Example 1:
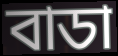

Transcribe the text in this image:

বাডা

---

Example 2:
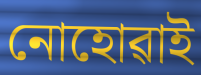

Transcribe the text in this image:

নোহোৱাই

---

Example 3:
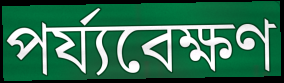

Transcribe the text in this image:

পৰ্য্যবেক্ষণ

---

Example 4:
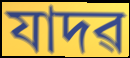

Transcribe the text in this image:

যাদৱ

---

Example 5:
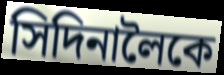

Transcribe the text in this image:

সিদিনালৈকে